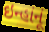
ઇન્હાંનૂં